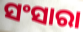
ସଂସାରା